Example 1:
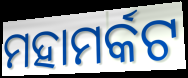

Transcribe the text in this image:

ମହାମର୍କଟ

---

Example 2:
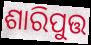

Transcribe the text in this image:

ଶାରିପୁତ୍ତ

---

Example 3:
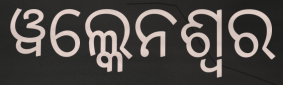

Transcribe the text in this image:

ୱଲ୍କେନଶ୍ୱର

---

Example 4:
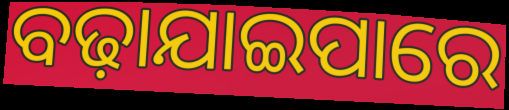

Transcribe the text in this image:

ବଢ଼ାଯାଇପାରେ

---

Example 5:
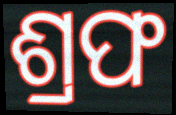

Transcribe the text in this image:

ଶ୍ରଫ